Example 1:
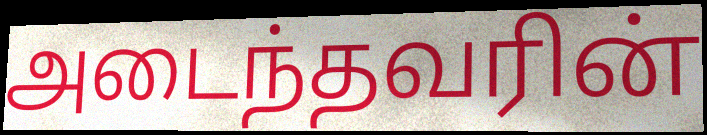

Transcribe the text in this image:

அடைந்தவரின்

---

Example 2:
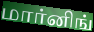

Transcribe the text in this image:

மார்னிங்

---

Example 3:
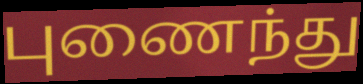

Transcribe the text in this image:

புணைந்து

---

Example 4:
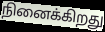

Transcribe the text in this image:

நினைக்கிறது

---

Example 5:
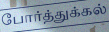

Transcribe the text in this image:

போர்த்துக்கல்